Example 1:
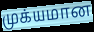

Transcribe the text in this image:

முக்யமான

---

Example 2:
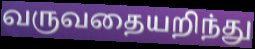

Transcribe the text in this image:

வருவதையறிந்து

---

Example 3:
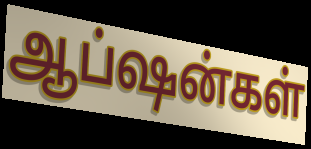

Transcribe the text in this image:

ஆப்ஷன்கள்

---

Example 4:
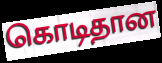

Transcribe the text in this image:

கொடிதான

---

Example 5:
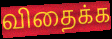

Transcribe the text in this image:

விதைக்க